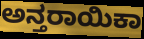
ಅನ್ತರಾಯಿಕಾ